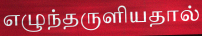
எழுந்தருளியதால்